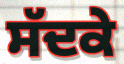
ਸੱਦਕੇ